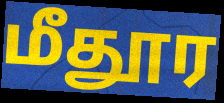
மீதூர